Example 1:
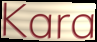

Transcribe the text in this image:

Kara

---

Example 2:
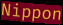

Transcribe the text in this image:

Nippon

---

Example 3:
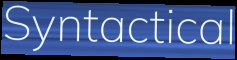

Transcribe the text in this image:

Syntactical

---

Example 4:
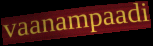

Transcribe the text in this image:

vaanampaadi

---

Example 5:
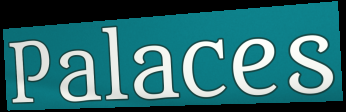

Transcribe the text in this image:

Palaces